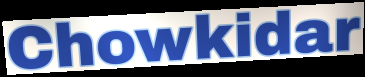
Chowkidar